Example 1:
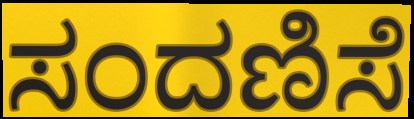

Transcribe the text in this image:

ಸಂದಣಿಸೆ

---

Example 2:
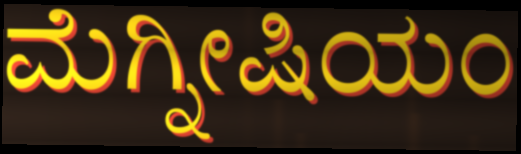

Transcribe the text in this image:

ಮೆಗ್ನೀಷಿಯಂ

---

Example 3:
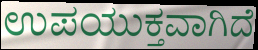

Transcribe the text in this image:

ಉಪಯುಕ್ತವಾಗಿದೆ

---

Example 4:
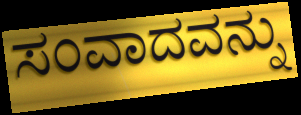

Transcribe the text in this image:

ಸಂವಾದವನ್ನು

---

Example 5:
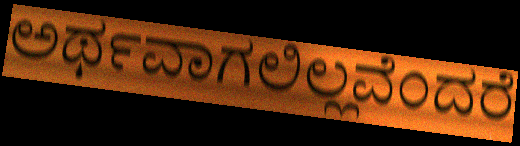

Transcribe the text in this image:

ಅರ್ಥವಾಗಲಿಲ್ಲವೆಂದರೆ